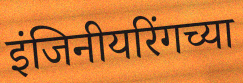
इंजिनीयरिंगच्या